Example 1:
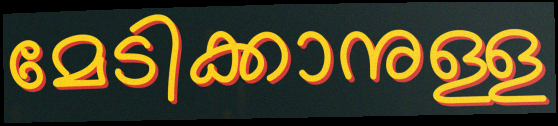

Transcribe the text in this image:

മേടിക്കാനുള്ള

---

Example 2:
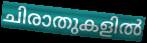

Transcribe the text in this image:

ചിരാതുകളിൽ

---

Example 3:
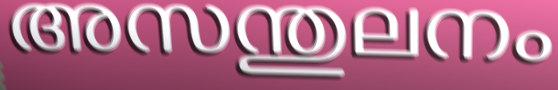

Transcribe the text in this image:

അസന്തുലനം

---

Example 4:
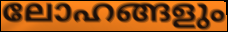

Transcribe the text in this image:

ലോഹങ്ങളും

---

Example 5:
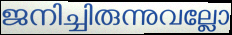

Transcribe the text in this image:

ജനിച്ചിരുന്നുവല്ലോ